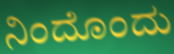
ನಿಂದೊಂದು